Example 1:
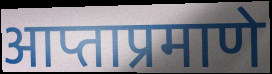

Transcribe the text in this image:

आप्ताप्रमाणे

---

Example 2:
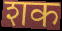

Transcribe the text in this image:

शक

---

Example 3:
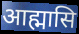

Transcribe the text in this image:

आह्मासि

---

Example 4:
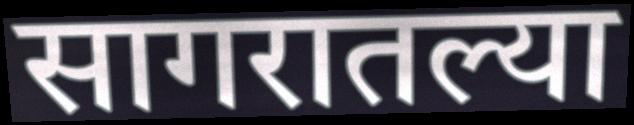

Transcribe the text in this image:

सागरातल्या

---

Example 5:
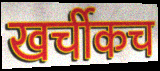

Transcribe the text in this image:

खर्चीकच